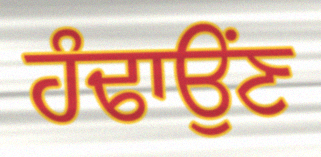
ਹੰਢਾਉਂਣ